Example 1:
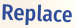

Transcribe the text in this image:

Replace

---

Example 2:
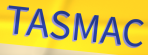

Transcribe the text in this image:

TASMAC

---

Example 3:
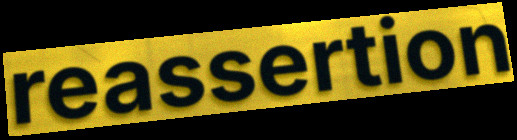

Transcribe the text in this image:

reassertion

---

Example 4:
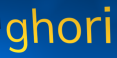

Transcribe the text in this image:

ghori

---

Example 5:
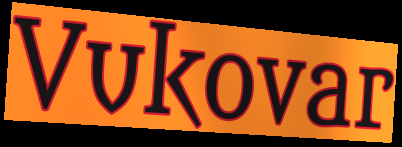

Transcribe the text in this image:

Vukovar